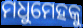
ମଧୁମେହକୁ